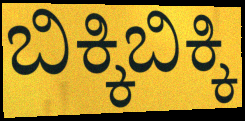
ಬಿಕ್ಕಿಬಿಕ್ಕಿ